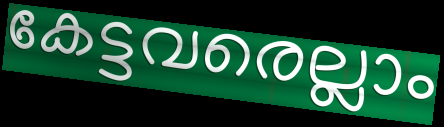
കേട്ടവരെല്ലാം